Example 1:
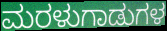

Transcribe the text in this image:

ಮರಳುಗಾಡುಗಳ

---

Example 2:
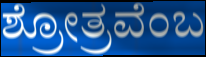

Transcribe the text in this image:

ಶ್ರೋತ್ರವೆಂಬ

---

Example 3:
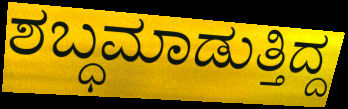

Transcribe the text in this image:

ಶಬ್ಧಮಾಡುತ್ತಿದ್ದ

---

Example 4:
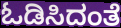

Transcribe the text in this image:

ಓಡಿಸಿದಂತೆ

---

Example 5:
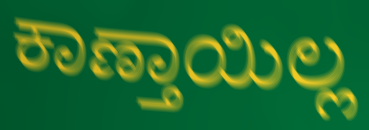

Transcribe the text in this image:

ಕಾಣ್ತಾಯಿಲ್ಲ